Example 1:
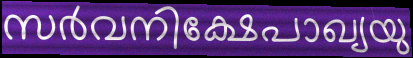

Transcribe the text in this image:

സർവനിക്ഷേപാഖ്യയു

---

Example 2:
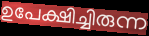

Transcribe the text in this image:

ഉപേക്ഷിച്ചിരുന്ന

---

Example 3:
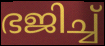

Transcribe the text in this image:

ഭജിച്ച്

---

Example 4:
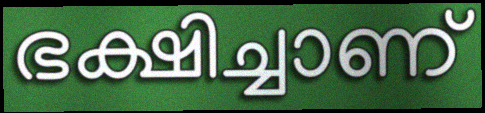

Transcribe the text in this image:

ഭക്ഷിച്ചാണ്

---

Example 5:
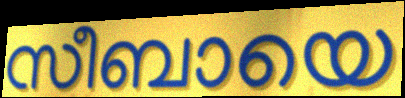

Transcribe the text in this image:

സീബായെ